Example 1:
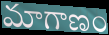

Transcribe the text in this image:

మాగాణం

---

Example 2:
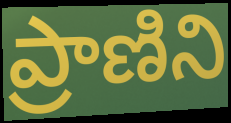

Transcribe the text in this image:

ప్రాణిని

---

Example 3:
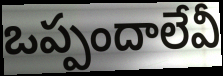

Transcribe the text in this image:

ఒప్పందాలేవీ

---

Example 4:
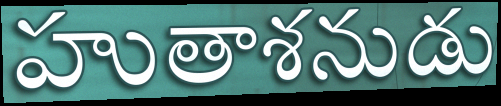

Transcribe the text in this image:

హుతాశనుడు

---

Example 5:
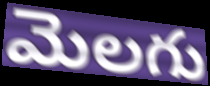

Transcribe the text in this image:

మెలగు